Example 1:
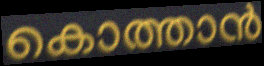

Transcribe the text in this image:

കൊത്താൻ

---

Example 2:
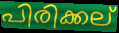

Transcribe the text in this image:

പിരിക്കല്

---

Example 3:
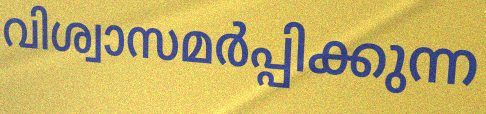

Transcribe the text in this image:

വിശ്വാസമർപ്പിക്കുന്ന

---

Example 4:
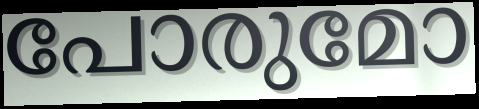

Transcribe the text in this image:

പോരുമോ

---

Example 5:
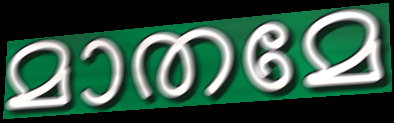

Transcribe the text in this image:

മാതമേ